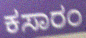
ಕಸಾರಂ